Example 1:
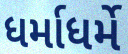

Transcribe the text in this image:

ધર્માધર્મે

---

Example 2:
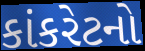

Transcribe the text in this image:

કાંકરેટનો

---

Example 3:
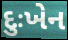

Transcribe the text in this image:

દુઃખેન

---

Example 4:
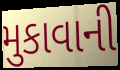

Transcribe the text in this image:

મુકાવાની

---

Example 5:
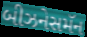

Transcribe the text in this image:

બીઝનેસમૅન